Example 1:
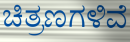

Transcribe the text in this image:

ಚಿತ್ರಣಗಳಿವೆ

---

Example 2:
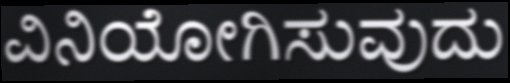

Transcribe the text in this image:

ವಿನಿಯೋಗಿಸುವುದು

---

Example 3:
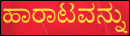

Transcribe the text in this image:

ಹಾರಾಟವನ್ನು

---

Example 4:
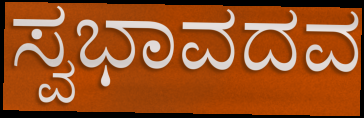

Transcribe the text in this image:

ಸ್ವಭಾವದವ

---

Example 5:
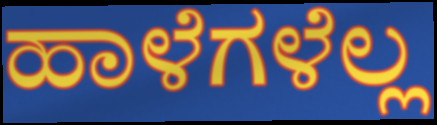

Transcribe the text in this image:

ಹಾಳೆಗಳೆಲ್ಲ